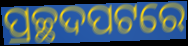
ପ୍ରଚ୍ଛଦପଟରେ